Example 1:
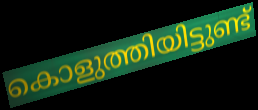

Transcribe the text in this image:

കൊളുത്തിയിട്ടുണ്ട്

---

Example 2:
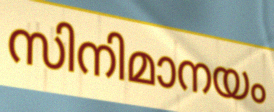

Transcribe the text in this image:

സിനിമാനയം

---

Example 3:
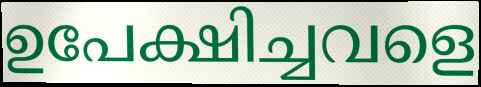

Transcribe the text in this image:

ഉപേക്ഷിച്ചവളെ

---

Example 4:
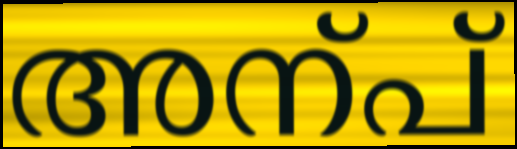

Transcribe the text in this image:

അന്പ്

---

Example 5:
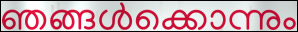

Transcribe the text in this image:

ഞങ്ങൾക്കൊന്നും